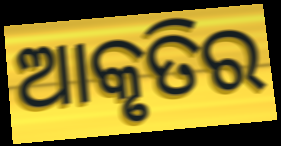
ଆକୃତିର